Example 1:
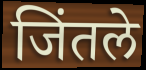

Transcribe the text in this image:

जिंतले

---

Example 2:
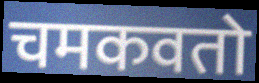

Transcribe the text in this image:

चमकवतो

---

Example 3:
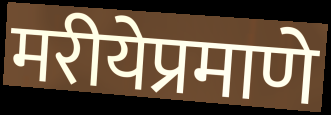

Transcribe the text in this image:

मरीयेप्रमाणे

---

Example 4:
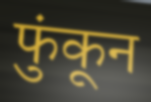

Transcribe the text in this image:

फुंकून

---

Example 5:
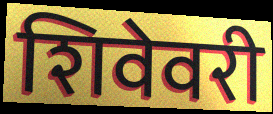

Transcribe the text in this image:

शिवेवरी